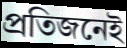
প্ৰতিজনেই